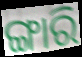
ଙ୍ଗାରି